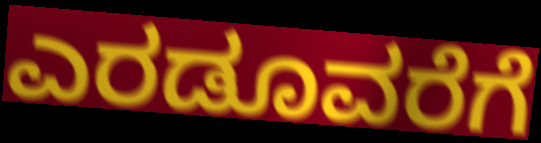
ಎರಡೂವರೆಗೆ